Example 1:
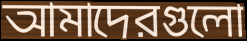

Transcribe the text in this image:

আমাদেরগুলো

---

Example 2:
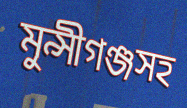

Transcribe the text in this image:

মুন্সীগঞ্জসহ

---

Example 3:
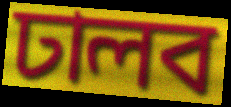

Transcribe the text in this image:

ঢালব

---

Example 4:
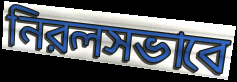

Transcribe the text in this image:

নিরলসভাবে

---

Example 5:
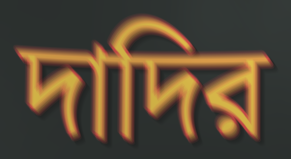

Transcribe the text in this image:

দাদির